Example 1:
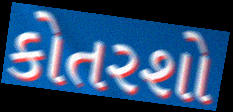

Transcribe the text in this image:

કોતરશો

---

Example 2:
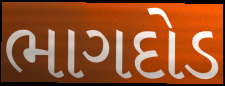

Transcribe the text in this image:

ભાગદોડ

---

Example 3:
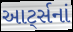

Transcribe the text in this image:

આર્ટ્સનાં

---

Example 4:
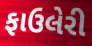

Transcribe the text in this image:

ફાઉલેરી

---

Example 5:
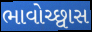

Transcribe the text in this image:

ભાવોચ્છ્વાસ